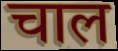
चाल